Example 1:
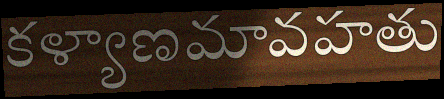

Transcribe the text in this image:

కళ్యాణమావహతు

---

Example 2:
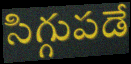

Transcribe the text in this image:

సిగ్గుపడే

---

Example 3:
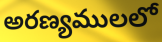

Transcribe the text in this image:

అరణ్యములలో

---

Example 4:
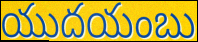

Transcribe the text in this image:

యుదయంబు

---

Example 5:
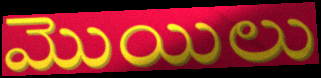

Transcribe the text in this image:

మొయిలు